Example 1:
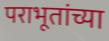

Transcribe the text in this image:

पराभूतांच्या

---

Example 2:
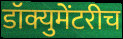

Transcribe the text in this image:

डॉक्युमेंटरीच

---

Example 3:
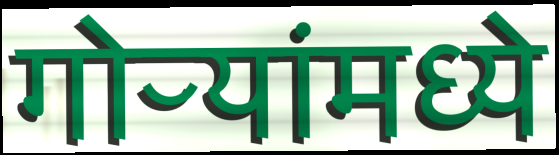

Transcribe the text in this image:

गोऱ्यांमध्ये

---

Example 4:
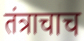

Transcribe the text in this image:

तंत्राचाच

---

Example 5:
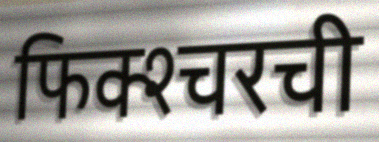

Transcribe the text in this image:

फिक्श्चरची